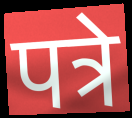
पत्रे